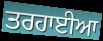
ਤਰਹਾਈਆ